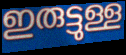
ഇരുട്ടുള്ള